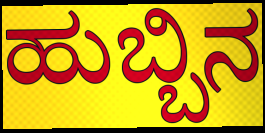
ಹುಬ್ಬಿನ